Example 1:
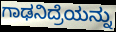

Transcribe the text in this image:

ಗಾಢನಿದ್ರೆಯನ್ನು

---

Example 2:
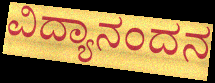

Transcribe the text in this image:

ವಿದ್ಯಾನಂದನ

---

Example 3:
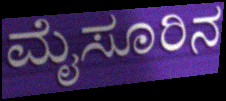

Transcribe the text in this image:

ಮೈಸೂರಿನ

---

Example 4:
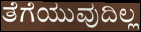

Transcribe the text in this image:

ತೆಗೆಯುವುದಿಲ್ಲ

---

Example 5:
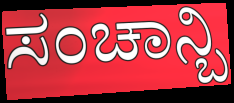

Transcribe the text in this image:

ಸಂಚಾನ್ಬಿ